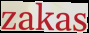
zakas